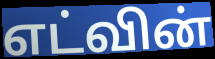
எட்வின்